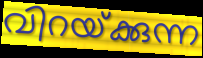
വിറയ്‌ക്കുന്ന